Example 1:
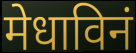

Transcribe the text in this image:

मेधाविनं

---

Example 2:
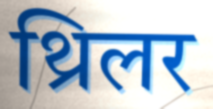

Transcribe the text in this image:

थ्रिलर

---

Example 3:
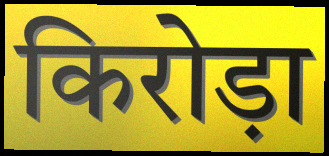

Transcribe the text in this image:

किरोड़ा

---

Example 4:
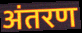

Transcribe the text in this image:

अंतरण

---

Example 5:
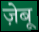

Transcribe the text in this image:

ज़ेबू